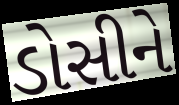
ડોસીને